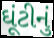
ઘૂંટીનું